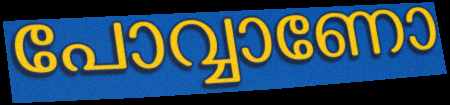
പോവ്വാണോ